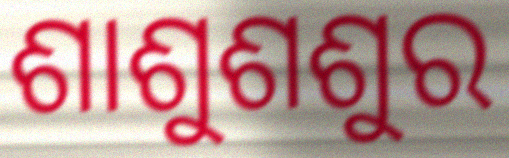
ଶାଶୁଶଶୁର